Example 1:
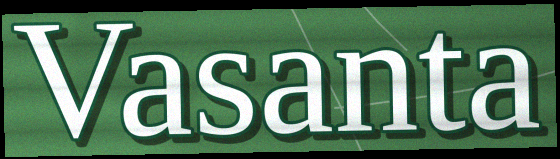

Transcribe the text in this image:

Vasanta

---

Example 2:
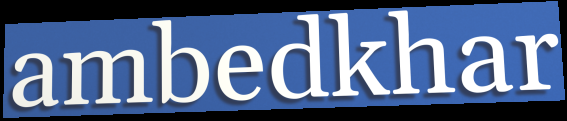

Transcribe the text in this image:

ambedkhar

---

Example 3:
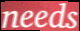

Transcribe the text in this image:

needs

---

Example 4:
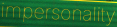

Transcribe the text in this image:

impersonality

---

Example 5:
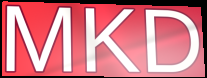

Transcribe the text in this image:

MKD